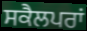
ਸਕੈਲਪਰਾਂ